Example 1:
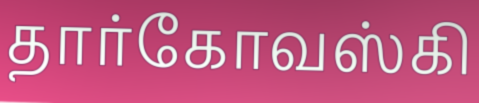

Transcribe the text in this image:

தார்கோவஸ்கி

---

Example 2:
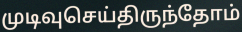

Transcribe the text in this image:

முடிவுசெய்திருந்தோம்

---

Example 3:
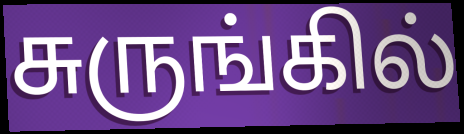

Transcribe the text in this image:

சுருங்கில்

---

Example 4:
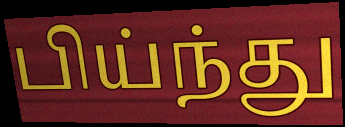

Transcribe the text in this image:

பிய்ந்து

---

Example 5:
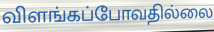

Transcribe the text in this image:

விளங்கப்போவதில்லை